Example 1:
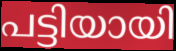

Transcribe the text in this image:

പട്ടിയായി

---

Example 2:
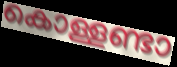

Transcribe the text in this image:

കൊള്ളണ്ടാ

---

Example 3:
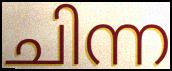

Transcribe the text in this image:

ചിന്ന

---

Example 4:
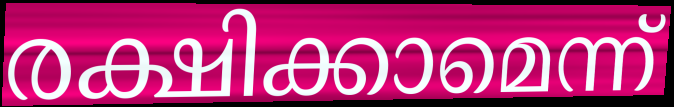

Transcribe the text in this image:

രക്ഷിക്കാമെന്ന്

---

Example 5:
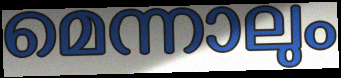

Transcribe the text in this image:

മെന്നാലും